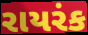
રાયરંક